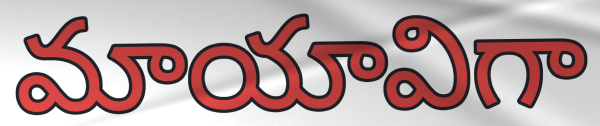
మాయావిగా